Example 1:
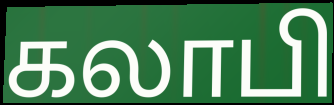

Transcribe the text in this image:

கலாபி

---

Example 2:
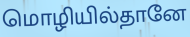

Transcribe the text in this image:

மொழியில்தானே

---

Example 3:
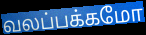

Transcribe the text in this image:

வலப்பக்கமோ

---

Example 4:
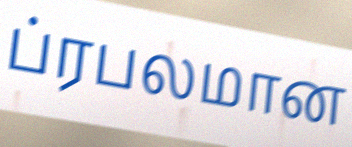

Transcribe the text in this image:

ப்ரபலமான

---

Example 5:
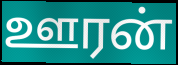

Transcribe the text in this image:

ஊரன்